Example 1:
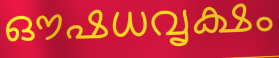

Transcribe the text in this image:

ഔഷധവൃക്ഷം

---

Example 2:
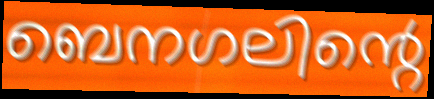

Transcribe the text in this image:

ബെനഗലിന്റെ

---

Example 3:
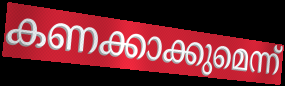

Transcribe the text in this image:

കണക്കാക്കുമെന്ന്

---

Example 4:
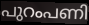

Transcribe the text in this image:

പുറംപണി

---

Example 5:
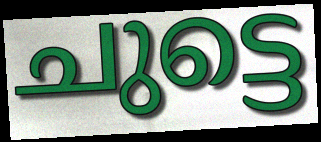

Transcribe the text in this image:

ചുട്ടെ